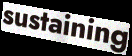
sustaining